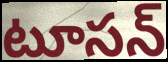
టూసన్